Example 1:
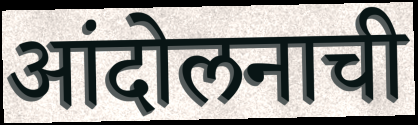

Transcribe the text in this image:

आंदोलनाची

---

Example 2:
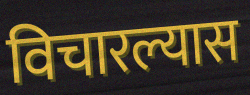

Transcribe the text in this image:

विचारल्यास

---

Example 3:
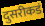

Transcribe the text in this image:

दुसरीकडं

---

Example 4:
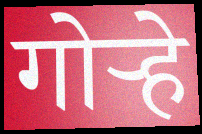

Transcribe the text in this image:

गोऱ्हे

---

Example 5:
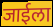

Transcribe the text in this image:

जाईला